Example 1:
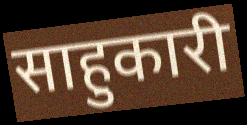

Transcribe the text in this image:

साहुकारी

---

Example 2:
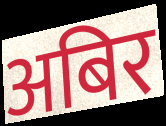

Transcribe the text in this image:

अबिर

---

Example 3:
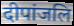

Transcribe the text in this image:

दीपांजलि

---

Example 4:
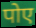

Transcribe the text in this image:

पोए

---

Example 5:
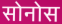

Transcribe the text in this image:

सोनोस